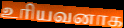
உரியவனாக